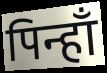
पिन्हाँ